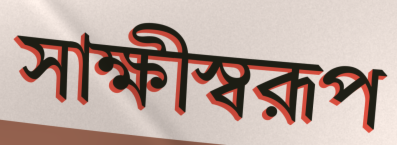
সাক্ষীস্বরূপ